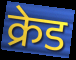
क्रेड